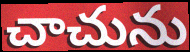
చాచును